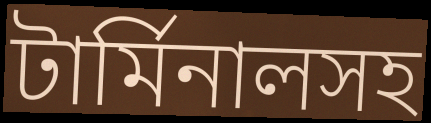
টার্মিনালসহ